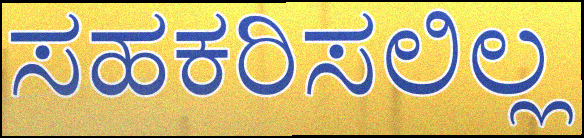
ಸಹಕರಿಸಲಿಲ್ಲ